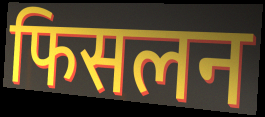
फिसलन